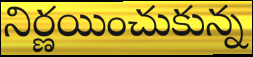
నిర్ణయించుకున్న